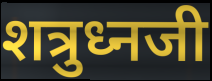
शत्रुध्नजी